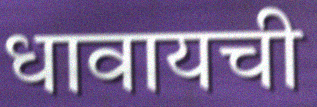
धावायची